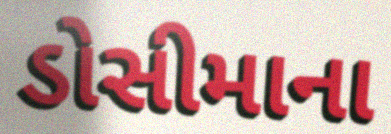
ડોસીમાના